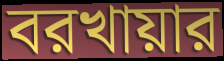
বরখায়ার